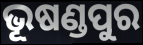
ଭୂଷଣ୍ଡପୁର